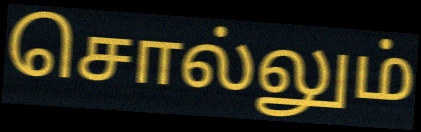
சொல்லும்